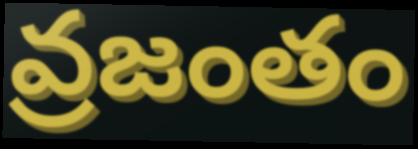
వ్రజంతం